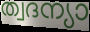
ത്വദന്യാ